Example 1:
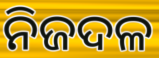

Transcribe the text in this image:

ନିଜଦଳ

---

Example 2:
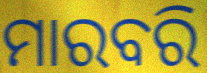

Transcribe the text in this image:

ମାରବରି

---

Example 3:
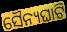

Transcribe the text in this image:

ସୈନ୍ୟଘାଟି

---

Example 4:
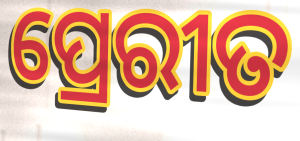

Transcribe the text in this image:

ପ୍ରେରୀତ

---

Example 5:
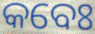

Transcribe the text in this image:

କବେଃ